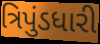
ત્રિપુંડધારી